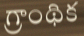
గ్రాంథిక